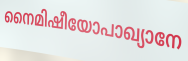
നൈമിഷീയോപാഖ്യാനേ